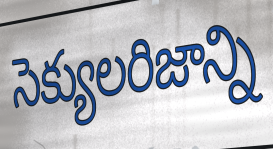
సెక్యులరిజాన్ని